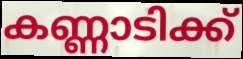
കണ്ണാടിക്ക്